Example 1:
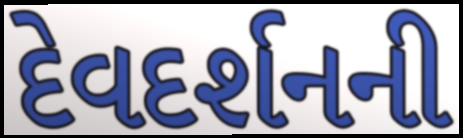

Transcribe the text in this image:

દેવદર્શનની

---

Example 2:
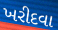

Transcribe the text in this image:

ખરીદવા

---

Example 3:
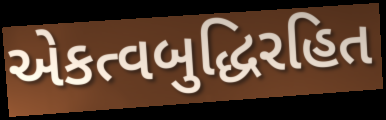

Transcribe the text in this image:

એકત્વબુદ્ધિરહિત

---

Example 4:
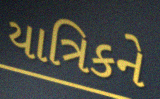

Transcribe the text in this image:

યાત્રિકને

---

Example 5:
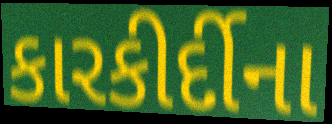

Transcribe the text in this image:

કારકીર્દીના